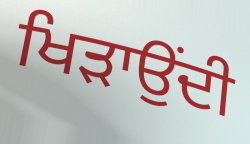
ਖਿੜਾਉਂਦੀ